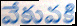
వేకువకి